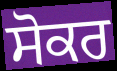
ਸੋਕਰ